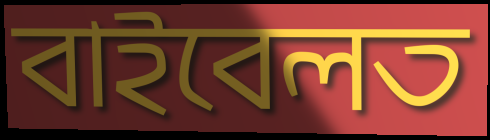
বাইবেলত